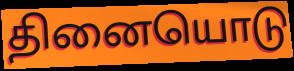
தினையொடு